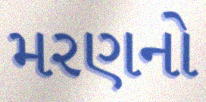
મરણનો